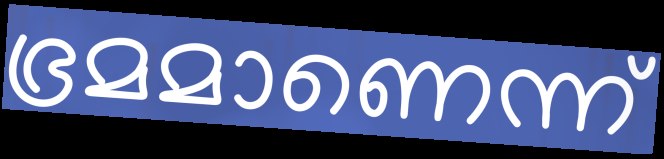
ഭ്രമമാണെന്ന്